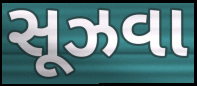
સૂઝવા